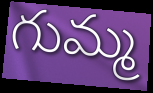
గుమ్మ